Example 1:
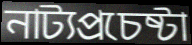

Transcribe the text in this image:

নাট্যপ্রচেষ্টা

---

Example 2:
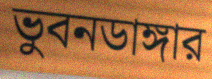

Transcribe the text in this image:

ভুবনডাঙ্গার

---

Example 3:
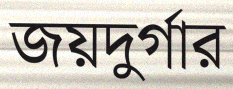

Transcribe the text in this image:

জয়দুর্গার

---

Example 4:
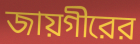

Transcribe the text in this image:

জায়গীরের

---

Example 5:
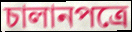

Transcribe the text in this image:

চালানপত্রে